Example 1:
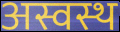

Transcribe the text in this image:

अस्वस्थ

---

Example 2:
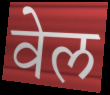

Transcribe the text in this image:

वेल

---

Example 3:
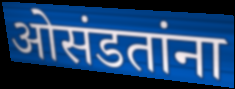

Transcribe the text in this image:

ओसंडतांना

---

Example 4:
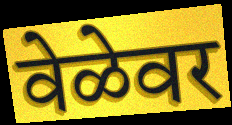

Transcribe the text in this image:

वेळेवर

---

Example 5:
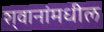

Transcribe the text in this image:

श्वानांमधील